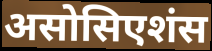
असोसिएशंस